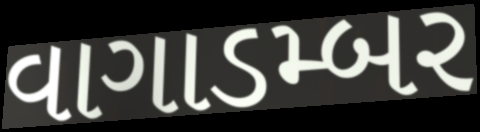
વાગાડમ્બર